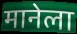
मानेला